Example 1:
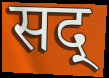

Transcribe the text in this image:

सद्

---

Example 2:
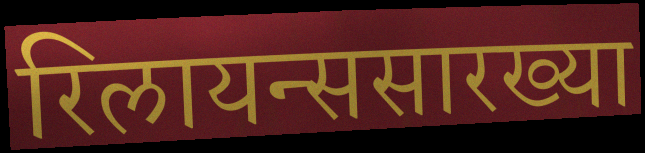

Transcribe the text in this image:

रिलायन्ससारख्या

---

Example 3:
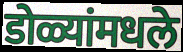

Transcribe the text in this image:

डोळ्यांमधले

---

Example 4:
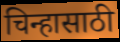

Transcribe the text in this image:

चिन्हासाठी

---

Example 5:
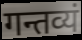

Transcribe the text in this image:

गन्तव्यं